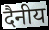
दैनीय